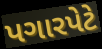
પગારપેટે